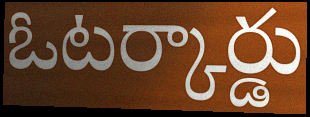
ఓటర్కార్డు